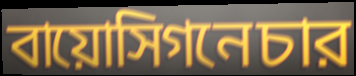
বায়োসিগনেচার